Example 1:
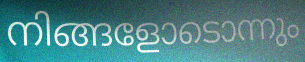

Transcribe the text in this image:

നിങ്ങളോടൊന്നും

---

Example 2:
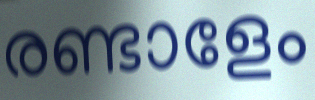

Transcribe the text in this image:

രണ്ടാളേം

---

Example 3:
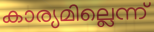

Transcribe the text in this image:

കാര്യമില്ലെന്ന്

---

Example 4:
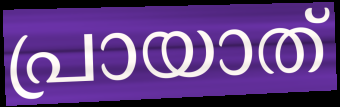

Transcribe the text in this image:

പ്രായാത്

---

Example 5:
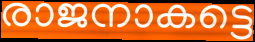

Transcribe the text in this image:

രാജനാകട്ടെ